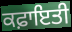
ਕਫ਼ਾਇਤੀ